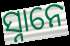
ସ୍ନାନେ